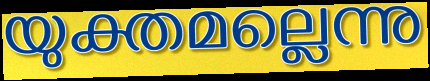
യുക്തമല്ലെന്നു